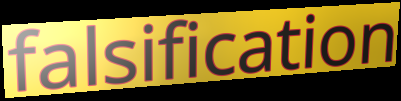
falsification